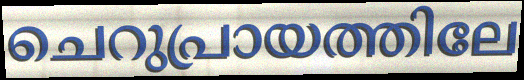
ചെറുപ്രായത്തിലേ